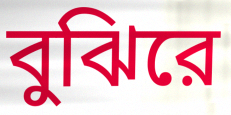
বুঝিরে